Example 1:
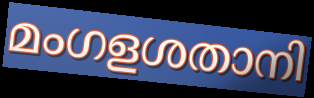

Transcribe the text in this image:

മംഗളശതാനി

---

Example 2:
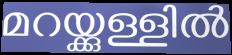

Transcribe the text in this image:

മറയ്ക്കുള്ളിൽ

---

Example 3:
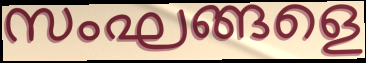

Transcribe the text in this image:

സംഘങ്ങളെ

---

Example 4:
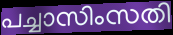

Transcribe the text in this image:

പച്ചാസിംസതി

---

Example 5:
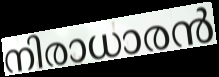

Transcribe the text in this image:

നിരാധാരൻ